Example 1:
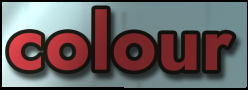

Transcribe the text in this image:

colour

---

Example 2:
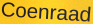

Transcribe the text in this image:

Coenraad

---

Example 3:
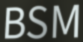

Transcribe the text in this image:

BSM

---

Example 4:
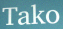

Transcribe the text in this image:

Tako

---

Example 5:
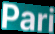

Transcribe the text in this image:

Pari